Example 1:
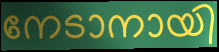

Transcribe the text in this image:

നേടാനായി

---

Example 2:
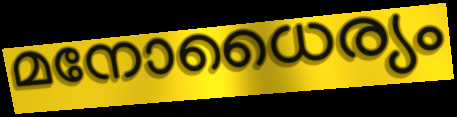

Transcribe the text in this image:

മനോധൈര്യം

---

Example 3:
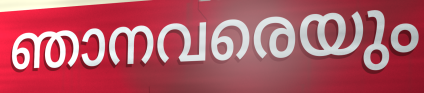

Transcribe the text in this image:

ഞാനവരെയും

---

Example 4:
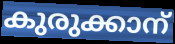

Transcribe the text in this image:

കുരുക്കാന്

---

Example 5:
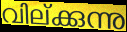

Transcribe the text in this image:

വില്ക്കുന്നു